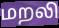
மறலி